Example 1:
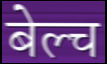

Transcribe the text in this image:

बेल्च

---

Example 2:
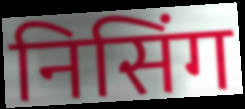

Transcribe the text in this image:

निसिंग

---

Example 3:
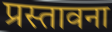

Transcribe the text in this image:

प्रस्‍तावना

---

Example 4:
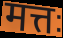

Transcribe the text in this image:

मत्तः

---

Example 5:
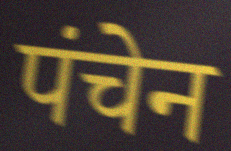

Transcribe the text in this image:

पंचेन